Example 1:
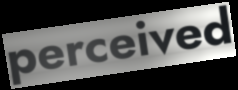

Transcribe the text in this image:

perceived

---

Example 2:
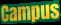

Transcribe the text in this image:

Campus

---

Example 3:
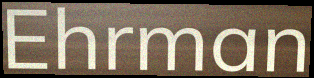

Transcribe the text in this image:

Ehrman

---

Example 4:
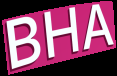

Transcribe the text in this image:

BHA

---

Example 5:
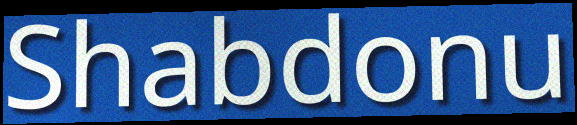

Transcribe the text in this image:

Shabdonu